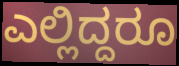
ಎಲ್ಲಿದ್ದರೂ